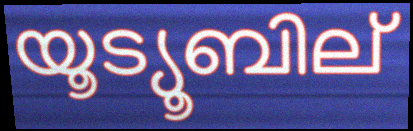
യൂട്യൂബില്